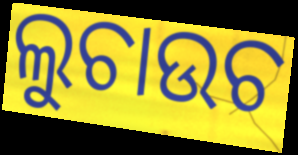
ଲୁଚାଉଚ